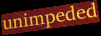
unimpeded